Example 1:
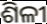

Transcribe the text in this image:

ଶିଳୀ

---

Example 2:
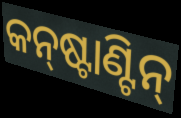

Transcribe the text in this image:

କନ୍‌ଷ୍ଟାଣ୍ଟିନ୍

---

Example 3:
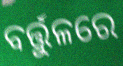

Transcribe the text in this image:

ବର୍ତ୍ତୁଳରେ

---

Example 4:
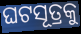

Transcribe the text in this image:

ଘଟସୂତ୍ରକୁ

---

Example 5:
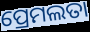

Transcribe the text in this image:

ପ୍ରେମଲତା